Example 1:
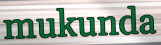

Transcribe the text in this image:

mukunda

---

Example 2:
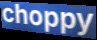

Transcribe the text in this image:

choppy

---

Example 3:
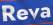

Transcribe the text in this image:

Reva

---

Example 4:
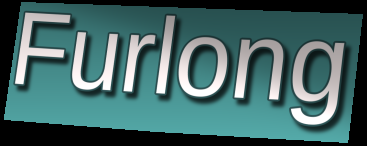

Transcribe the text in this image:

Furlong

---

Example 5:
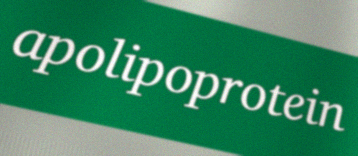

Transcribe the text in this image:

apolipoprotein